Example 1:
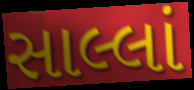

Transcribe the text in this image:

સાલ્લાં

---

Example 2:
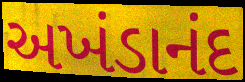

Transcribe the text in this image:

અખંડાનંદ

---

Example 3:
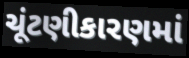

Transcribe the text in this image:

ચૂંટણીકારણમાં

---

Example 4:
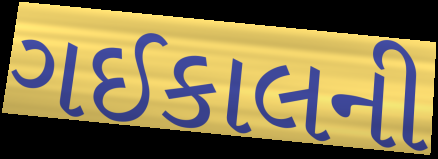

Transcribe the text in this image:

ગઈકાલની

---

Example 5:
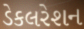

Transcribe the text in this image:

ડેકલરેશન